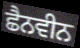
ਛੈਨਵੀਨ